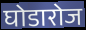
घोडारोज